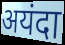
अयंदा